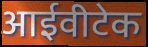
आईवीटेक